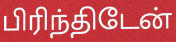
பிரிந்திடேன்